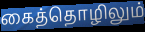
கைத்தொழிலும்